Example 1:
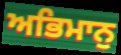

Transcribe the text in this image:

ਅਭਿਮਾਨੁ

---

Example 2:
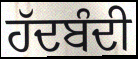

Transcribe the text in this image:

ਹੱਦਬੰਦੀ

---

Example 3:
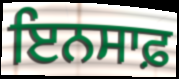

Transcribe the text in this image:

ਇਨਸਾਫ਼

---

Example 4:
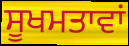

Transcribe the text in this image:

ਸੂਖਮਤਾਵਾਂ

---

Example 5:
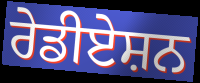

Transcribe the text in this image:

ਰੇਡੀਏਸ਼ਨ